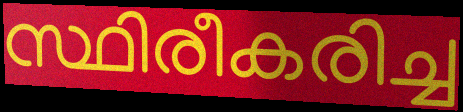
സ്ഥിരീകരിച്ച